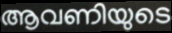
ആവണിയുടെ